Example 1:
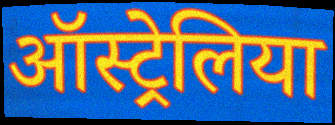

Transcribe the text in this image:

ऑस्ट्रेलिया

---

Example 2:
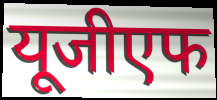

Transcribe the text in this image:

यूजीएफ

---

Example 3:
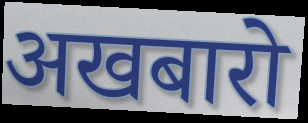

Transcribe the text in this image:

अखबारो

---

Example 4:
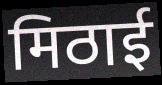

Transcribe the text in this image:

मिठाई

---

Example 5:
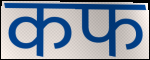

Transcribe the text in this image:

कफ